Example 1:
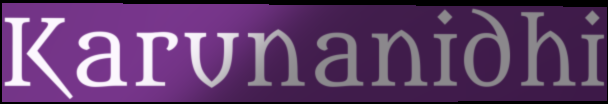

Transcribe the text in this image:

Karunanidhi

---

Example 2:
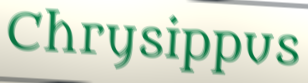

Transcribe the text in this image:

Chrysippus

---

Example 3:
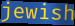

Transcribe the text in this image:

jewish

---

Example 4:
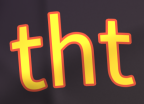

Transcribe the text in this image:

tht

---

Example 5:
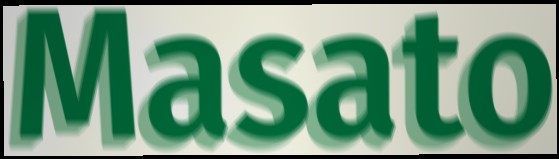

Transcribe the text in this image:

Masato